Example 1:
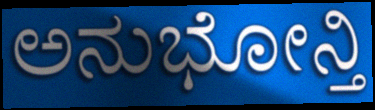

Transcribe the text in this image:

ಅನುಭೋನ್ತಿ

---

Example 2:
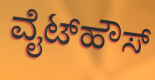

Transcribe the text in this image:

ವೈಟ್‌ಹೌಸ್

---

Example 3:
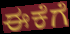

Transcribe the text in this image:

ಈಕೆಗೆ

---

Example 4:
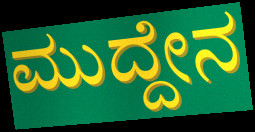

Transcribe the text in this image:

ಮುದ್ದೇನ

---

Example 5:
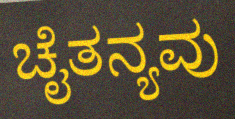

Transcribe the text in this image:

ಚೈತನ್ಯವು